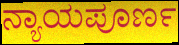
ನ್ಯಾಯಪೂರ್ಣ